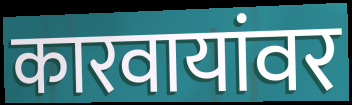
कारवायांवर